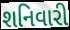
શનિવારી